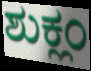
ಶುಕ್ಲಂ